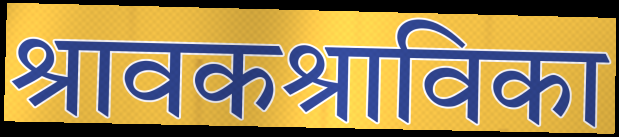
श्रावकश्राविका